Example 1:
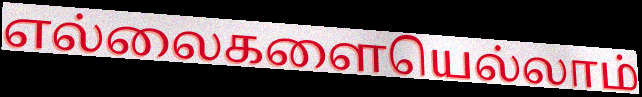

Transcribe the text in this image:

எல்லைகளையெல்லாம்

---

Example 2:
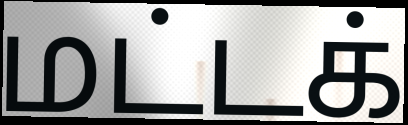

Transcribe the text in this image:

மட்டக்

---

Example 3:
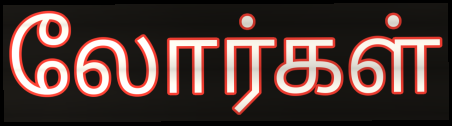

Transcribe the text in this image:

லோர்கள்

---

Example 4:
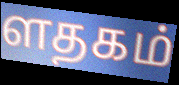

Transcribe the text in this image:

ளதகம்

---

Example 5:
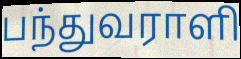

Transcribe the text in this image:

பந்துவராளி